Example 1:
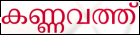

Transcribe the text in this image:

കണ്ണവത്ത്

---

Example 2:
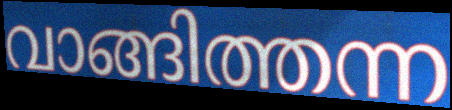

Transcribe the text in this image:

വാങ്ങിത്തന്ന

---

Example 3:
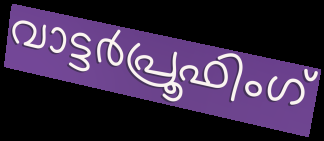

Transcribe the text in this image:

വാട്ടർപ്രൂഫിംഗ്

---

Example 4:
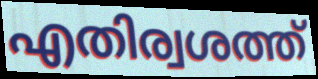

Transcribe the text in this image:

എതിര്വശത്ത്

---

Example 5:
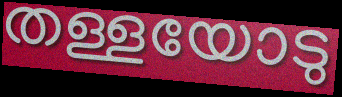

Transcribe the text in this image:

തള്ളയോടു